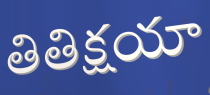
తితిక్షయా